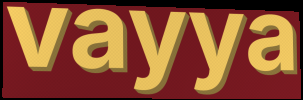
vayya